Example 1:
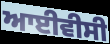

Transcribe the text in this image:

ਆਈਵੀਸੀ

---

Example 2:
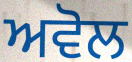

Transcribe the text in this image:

ਅਵੋਲ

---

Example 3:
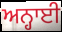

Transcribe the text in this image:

ਅਨ੍ਹਾਈ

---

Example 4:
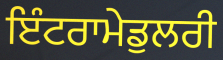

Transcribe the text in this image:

ਇੰਟਰਾਮੇਡੁਲਰੀ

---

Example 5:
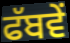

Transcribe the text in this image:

ਫੱਬਵੇਂ